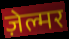
ज़ेल्मर